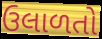
ઉલાળતો